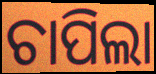
ଚାପିଲା